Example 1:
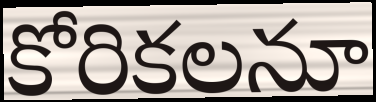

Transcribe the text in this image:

కోరికలనూ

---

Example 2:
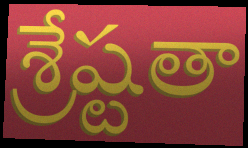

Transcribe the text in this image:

శ్రేష్టతా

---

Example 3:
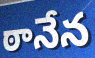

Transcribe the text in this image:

ఠానేన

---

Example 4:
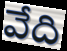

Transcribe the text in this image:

వేది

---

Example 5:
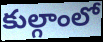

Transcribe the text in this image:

కుల్గాంలో